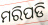
ମରିପଡି